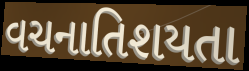
વચનાતિશયતા